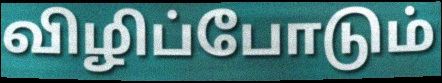
விழிப்போடும்